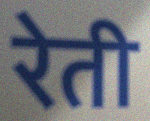
रेती